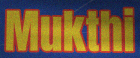
Mukthi